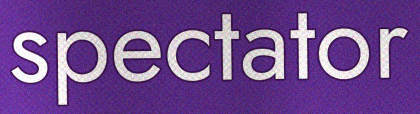
spectator